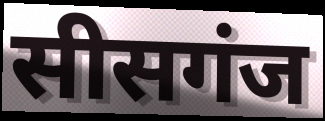
सीसगंज